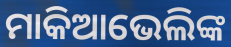
ମାକିଆଭେଲିଙ୍କ